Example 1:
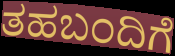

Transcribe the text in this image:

ತಹಬಂದಿಗೆ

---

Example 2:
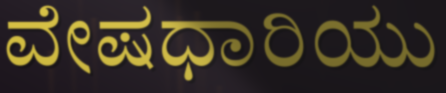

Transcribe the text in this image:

ವೇಷಧಾರಿಯು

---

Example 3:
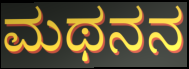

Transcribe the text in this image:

ಮಥನನ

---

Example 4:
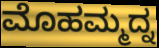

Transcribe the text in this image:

ಮೊಹಮ್ಮದ್ನ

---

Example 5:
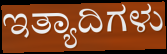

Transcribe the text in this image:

ಇತ್ಯಾದಿಗಳು